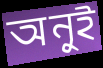
অনুই